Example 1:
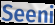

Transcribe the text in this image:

Seeni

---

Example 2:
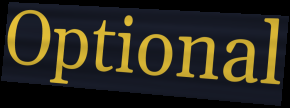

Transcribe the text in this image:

Optional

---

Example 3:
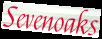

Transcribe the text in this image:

Sevenoaks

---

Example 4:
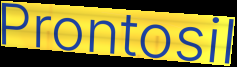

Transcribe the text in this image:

Prontosil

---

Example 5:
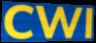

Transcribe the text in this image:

CWI